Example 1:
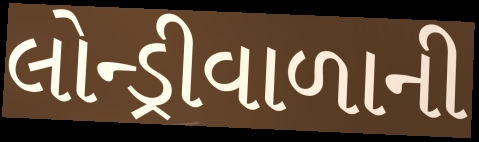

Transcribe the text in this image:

લોન્ડ્રીવાળાની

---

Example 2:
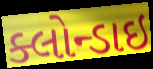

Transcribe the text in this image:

ક્લોન્ડાઇ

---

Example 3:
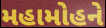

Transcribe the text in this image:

મહામોહને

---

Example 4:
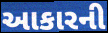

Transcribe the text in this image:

આકારની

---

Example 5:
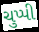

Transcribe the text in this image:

ચુપ્પી